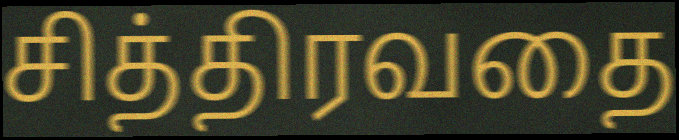
சித்திரவதை